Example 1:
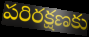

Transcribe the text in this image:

పరిరక్షణకు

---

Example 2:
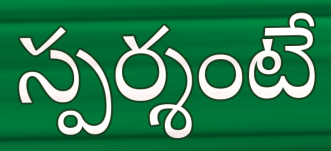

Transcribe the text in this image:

స్పర్శంటే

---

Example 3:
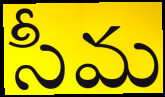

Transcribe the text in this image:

సీమ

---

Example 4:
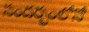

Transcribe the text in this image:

సందర్భంలోనో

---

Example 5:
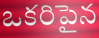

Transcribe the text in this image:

ఒకరిపైన